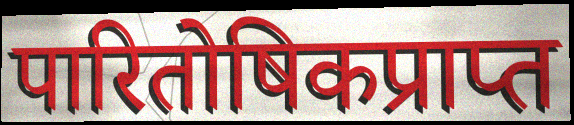
पारितोषिकप्राप्त